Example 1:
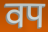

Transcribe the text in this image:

वप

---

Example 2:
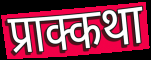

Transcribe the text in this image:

प्राक्कथा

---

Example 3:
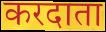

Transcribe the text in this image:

करदाता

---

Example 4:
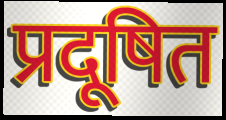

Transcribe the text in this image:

प्रदूषित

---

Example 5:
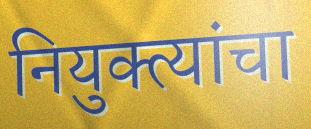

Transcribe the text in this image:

नियुक्त्यांचा